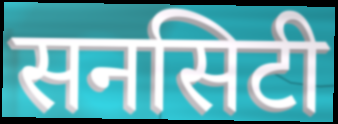
सनसिटी